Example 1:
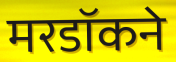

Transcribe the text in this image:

मरडॉकने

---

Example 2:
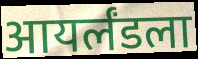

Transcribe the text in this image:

आयर्लंडला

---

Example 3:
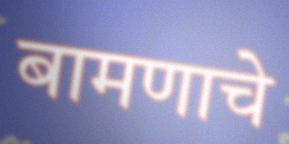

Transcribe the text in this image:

बामणाचे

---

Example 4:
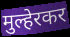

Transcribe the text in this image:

मुल्हेरकर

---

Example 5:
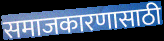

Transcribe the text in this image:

समाजकारणासाठी